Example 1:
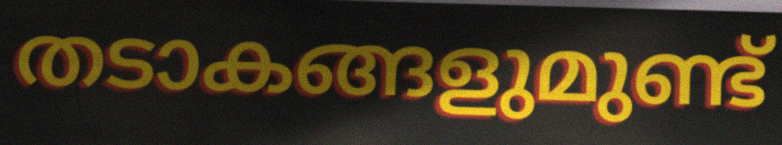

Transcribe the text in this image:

തടാകങ്ങളുമുണ്ട്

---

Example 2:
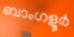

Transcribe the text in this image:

ബാംഗളൂർ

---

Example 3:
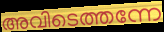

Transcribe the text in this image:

അവിടെത്തന്നേ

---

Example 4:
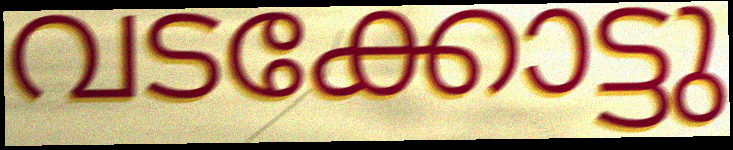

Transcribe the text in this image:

വടക്കോട്ടു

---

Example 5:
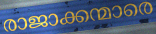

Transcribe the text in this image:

രാജാക്കന്മാരെ